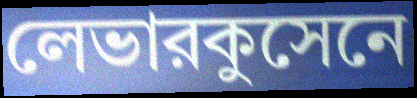
লেভারকুসেনে